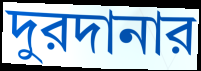
দুরদানার